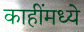
काहींमध्ये